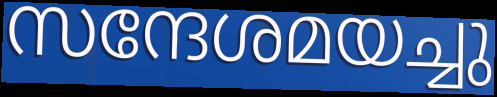
സന്ദേശമയച്ചു